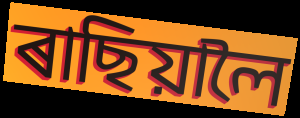
ৰাছিয়ালৈ